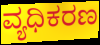
ವ್ಯಧಿಕರಣ